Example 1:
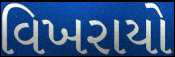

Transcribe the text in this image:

વિખરાયો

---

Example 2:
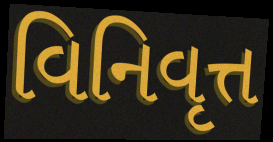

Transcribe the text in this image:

વિનિવૃત્ત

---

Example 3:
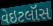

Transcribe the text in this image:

વેઇટલૉસ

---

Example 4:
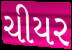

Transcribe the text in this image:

ચીયર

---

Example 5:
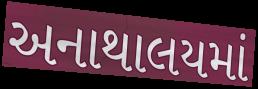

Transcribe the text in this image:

અનાથાલયમાં